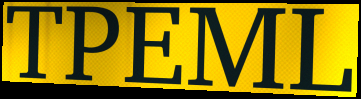
TPEML